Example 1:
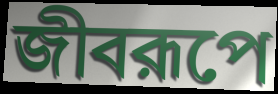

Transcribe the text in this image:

জীবরূপে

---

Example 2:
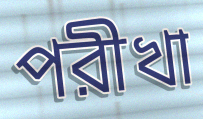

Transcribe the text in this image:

পরীখা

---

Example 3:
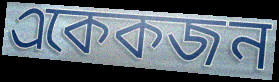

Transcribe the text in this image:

একেকজন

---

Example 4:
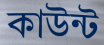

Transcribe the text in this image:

কাউন্ট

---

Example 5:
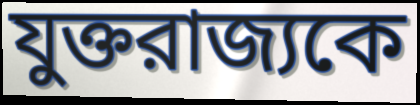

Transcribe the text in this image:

যুক্তরাজ্যকে